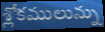
శ్లోకములున్ను